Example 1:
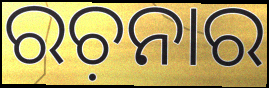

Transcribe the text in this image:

ରଚ଼ନାର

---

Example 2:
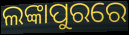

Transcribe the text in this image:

ଲଙ୍କାପୁରରେ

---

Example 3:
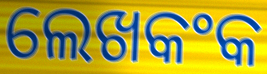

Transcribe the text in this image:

ଲେଖକଂକ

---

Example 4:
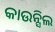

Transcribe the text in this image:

କାଉନ୍ସିଲ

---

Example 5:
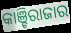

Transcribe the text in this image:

କାଞ୍ଚିରାଜାର